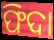
ଫିଦା